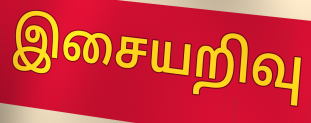
இசையறிவு